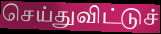
செய்துவிட்டுச்